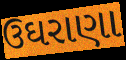
ઉઘરાણા